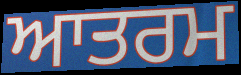
ਆਤਰਮ